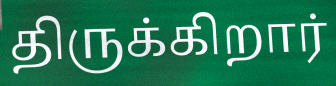
திருக்கிறார்